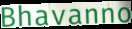
Bhavanno